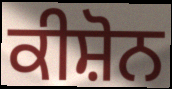
ਕੀਸ਼ੋਨ